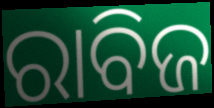
ରାବିଜ